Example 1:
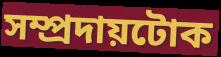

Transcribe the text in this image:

সম্প্ৰদায়টোক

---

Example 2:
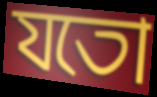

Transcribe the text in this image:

যতো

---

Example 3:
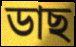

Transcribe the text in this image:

ডাছ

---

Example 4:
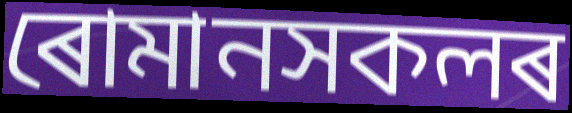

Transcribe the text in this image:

ৰোমানসকলৰ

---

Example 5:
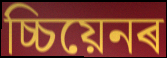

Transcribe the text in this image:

চ্চিয়েনৰ